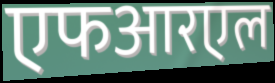
एफआरएल